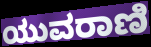
ಯುವರಾಣಿ